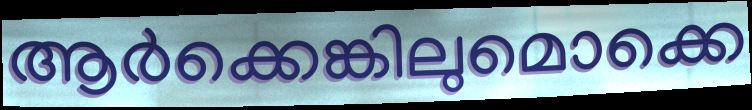
ആർക്കെങ്കിലുമൊക്കെ